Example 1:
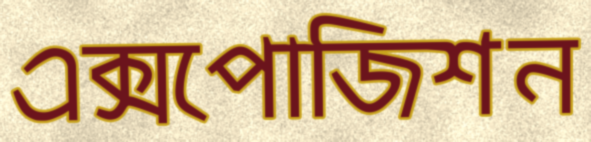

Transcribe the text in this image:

এক্সপোজিশন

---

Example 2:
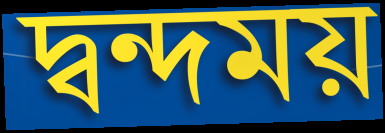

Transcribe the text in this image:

দ্বন্দময়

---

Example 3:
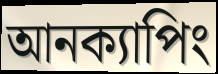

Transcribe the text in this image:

আনক্যাপিং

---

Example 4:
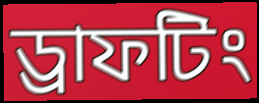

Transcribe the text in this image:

ড্রাফটিং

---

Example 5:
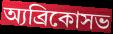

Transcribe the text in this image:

অ্যব্রিকোসভ